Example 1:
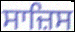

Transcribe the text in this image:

ਸਾਜ਼ਿਸ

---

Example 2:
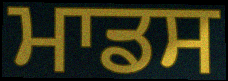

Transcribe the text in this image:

ਮਾਡਸ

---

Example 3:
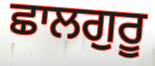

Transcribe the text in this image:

ਛਾਲਗੁਰੂ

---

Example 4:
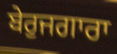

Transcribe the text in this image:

ਬੇਰੁਜਗਾਰਾ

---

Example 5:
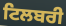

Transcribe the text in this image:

ਟਿਲਬਰੀ